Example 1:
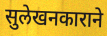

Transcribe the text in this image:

सुलेखनकाराने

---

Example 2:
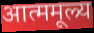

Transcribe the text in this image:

आत्ममूल्य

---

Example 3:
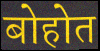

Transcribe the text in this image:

बोहोत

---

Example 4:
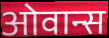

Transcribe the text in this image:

ओवान्स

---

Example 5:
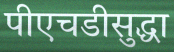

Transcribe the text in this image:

पीएचडीसुद्धा